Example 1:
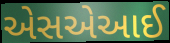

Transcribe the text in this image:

એસએઆઈ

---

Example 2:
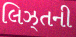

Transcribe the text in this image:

લિઝ્તની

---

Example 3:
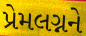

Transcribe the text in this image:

પ્રેમલગ્નને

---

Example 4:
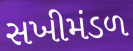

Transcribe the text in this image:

સખીમંડળ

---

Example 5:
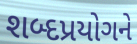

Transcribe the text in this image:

શબ્દપ્રયોગને